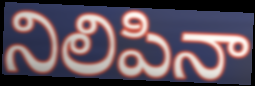
నిలిపినా